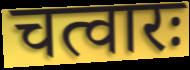
चत्वारः